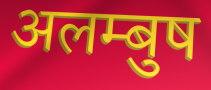
अलम्बुष